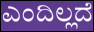
ಎಂದಿಲ್ಲದೆ